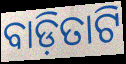
ବାଡ଼ିତାଟି